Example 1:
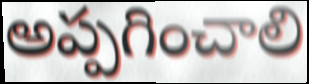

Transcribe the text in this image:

అప్పగించాలి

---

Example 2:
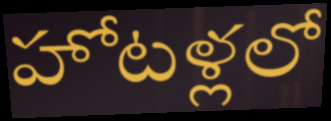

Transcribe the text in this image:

హోటళ్లలో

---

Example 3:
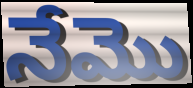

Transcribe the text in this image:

నేమొ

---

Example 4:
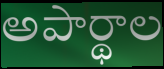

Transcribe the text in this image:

అపార్థాల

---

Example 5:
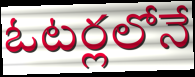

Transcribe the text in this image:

ఓటర్లలోనే